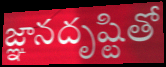
జ్ఞానదృష్టితో